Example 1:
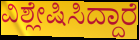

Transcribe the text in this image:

ವಿಶ್ಲೇಷಿಸಿದ್ದಾರೆ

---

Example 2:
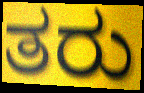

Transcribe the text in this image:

ತರು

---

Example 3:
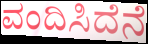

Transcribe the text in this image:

ವಂದಿಸಿದೆನೆ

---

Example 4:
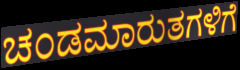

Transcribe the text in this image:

ಚಂಡಮಾರುತಗಳಿಗೆ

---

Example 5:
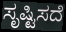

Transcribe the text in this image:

ಸೃಷ್ಟಿಸದೆ